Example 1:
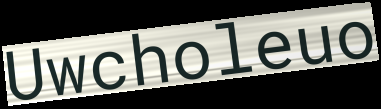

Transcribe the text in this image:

Uwcholeuo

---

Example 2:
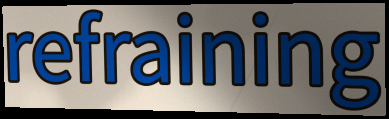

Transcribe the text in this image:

refraining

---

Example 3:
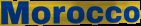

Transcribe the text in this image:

Morocco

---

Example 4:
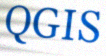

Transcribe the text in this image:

QGIS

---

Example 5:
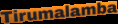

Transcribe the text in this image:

Tirumalamba